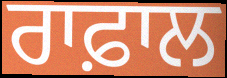
ਰਾਫ਼ਾਲ